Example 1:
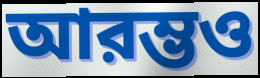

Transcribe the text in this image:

আরম্ভও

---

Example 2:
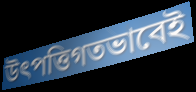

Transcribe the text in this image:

উৎপত্তিগতভাবেই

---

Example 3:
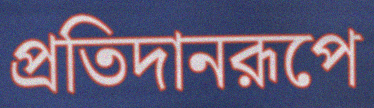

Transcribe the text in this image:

প্রতিদানরূপে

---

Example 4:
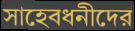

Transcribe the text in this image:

সাহেবধনীদের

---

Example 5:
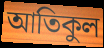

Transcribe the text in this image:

আতিকুল